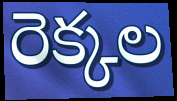
రెక్కల